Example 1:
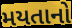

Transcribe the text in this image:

મયતાનો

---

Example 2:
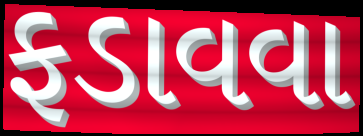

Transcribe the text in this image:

ફડાવવા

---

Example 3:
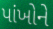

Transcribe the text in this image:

પાંખોને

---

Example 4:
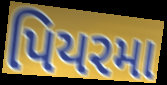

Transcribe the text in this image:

પિયરમા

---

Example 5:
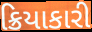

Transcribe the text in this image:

ક્રિયાકારી